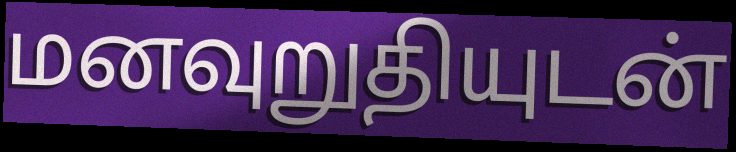
மனவுறுதியுடன்